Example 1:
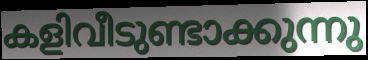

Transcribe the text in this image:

കളിവീടുണ്ടാക്കുന്നു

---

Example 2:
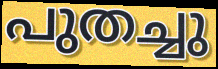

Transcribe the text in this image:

പുതച്ചു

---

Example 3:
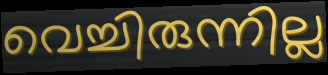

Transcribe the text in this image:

വെച്ചിരുന്നില്ല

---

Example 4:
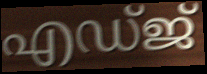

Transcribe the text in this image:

എഡ്ജ്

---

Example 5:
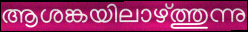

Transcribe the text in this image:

ആശങ്കയിലാഴ്ത്തുന്നു